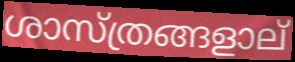
ശാസ്ത്രങ്ങളാല്